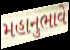
મહાનુભાવે